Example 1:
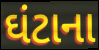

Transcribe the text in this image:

ઘંટાના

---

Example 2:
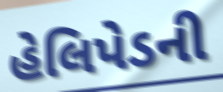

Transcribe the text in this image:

હેલિપેડની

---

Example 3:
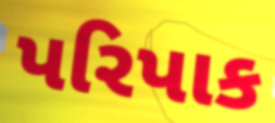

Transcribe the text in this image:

પરિપાક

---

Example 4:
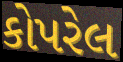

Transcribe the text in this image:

કોપરેલ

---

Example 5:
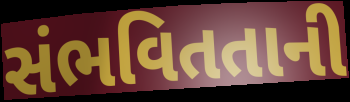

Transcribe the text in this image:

સંભવિતતાની